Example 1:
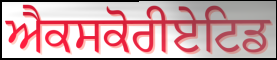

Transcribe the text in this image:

ਐਕਸਕੋਰੀਏਟਿਡ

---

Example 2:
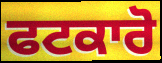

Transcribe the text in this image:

ਫਟਕਾਰੋ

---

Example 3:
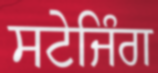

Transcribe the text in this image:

ਸਟੇਜਿੰਗ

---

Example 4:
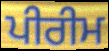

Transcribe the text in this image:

ਪੀਰੀਮ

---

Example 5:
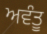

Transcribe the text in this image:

ਅਵੰਤੂ